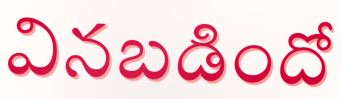
వినబడిందో